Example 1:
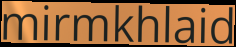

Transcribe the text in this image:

mirmkhlaid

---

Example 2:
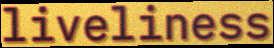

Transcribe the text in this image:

liveliness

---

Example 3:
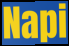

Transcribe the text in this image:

Napi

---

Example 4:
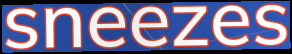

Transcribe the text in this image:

sneezes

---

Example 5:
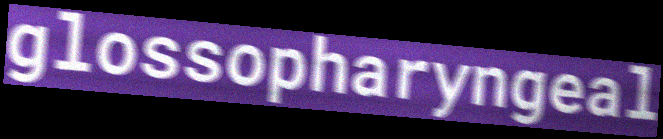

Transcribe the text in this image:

glossopharyngeal